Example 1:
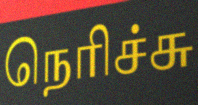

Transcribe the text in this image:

நெரிச்சு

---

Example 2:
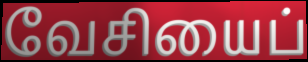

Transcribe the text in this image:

வேசியைப்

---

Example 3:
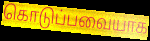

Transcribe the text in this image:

கொடுப்பவையாக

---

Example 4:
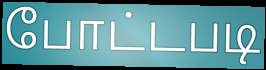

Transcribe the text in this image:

போட்டபடி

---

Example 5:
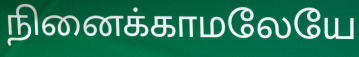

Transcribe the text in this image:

நினைக்காமலேயே